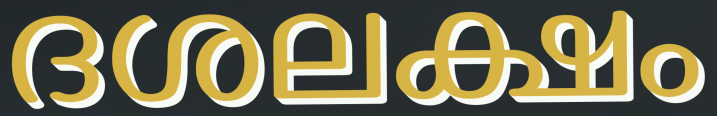
ദശലക്ഷം